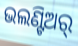
ଭଲଣ୍ଟିଅର୍